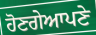
ਹੋਣਗੇਆਪਣੇ